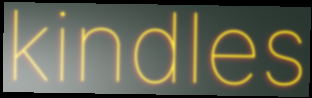
kindles